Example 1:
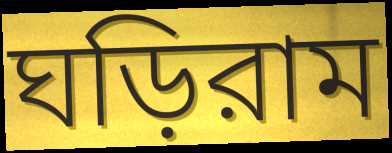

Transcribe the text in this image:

ঘড়িরাম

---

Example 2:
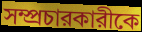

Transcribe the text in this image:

সম্প্রচারকারীকে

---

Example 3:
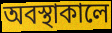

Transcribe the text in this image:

অবস্থাকালে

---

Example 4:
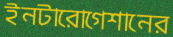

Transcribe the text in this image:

ইনটারোগেশানের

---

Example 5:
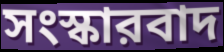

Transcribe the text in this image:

সংস্কারবাদ